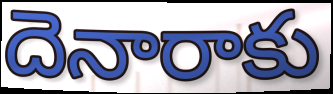
దెనారాకు